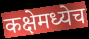
कक्षेमध्येच